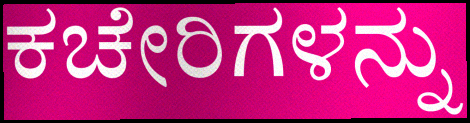
ಕಚೇರಿಗಳನ್ನು